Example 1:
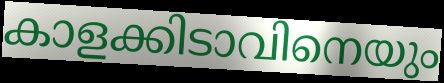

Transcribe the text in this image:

കാളക്കിടാവിനെയും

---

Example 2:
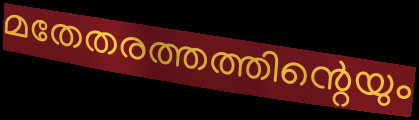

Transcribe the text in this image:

മതേതരത്തത്തിന്റെയും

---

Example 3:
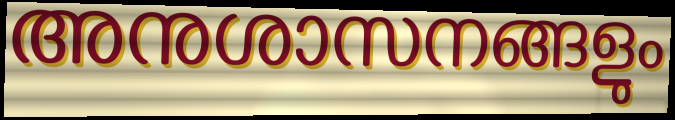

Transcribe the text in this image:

അനുശാസനങ്ങളും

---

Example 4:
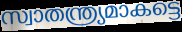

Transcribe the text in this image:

സ്വാതന്ത്ര്യമാകട്ടെ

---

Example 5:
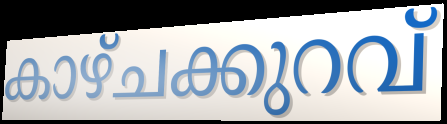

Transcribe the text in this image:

കാഴ്ചക്കുറവ്